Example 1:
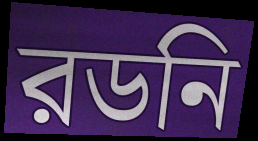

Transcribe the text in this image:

রডনি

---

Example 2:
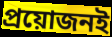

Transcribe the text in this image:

প্রয়োজনই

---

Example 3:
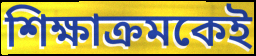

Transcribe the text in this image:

শিক্ষাক্রমকেই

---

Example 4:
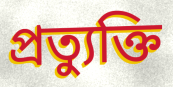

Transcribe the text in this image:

প্রত্যুক্তি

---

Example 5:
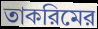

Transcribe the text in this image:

তাকরিমের